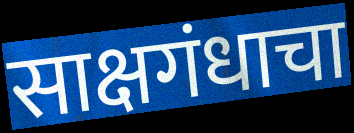
साक्षगंधाचा